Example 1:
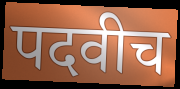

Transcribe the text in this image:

पदवीच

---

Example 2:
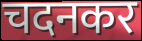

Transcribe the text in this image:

चदनकर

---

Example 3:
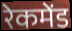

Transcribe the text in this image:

रेकमेंड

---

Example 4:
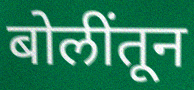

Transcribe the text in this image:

बोलींतून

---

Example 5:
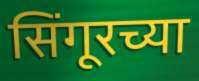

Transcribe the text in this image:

सिंगूरच्या